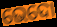
ଭେଦୋ